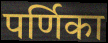
पर्णिका